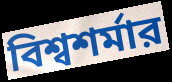
বিশ্বশর্মার